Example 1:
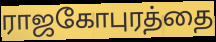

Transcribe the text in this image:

ராஜகோபுரத்தை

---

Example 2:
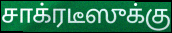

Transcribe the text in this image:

சாக்ரடீஸுக்கு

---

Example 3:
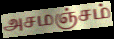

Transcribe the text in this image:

அசமஞ்சம்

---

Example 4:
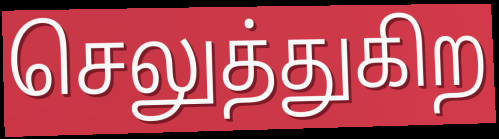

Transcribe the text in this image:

செலுத்துகிற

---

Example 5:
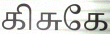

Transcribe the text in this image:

கிசுகே